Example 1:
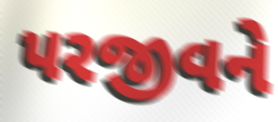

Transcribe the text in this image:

પરજીવને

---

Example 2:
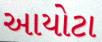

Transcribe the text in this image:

આયોટા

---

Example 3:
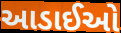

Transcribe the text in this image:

આડાઈઓ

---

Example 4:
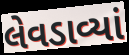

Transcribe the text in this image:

લેવડાવ્યાં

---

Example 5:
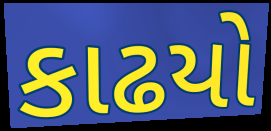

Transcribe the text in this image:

કાઢયો